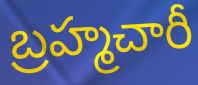
బ్రహ్మచారీ